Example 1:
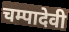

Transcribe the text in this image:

चम्पादेवी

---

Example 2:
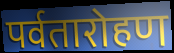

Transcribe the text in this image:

पर्वतारोहण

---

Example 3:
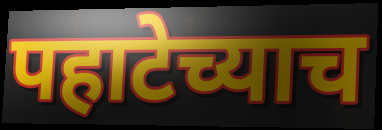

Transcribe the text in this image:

पहाटेच्याच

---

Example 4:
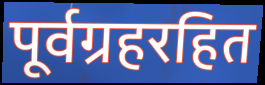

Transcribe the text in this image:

पूर्वग्रहरहित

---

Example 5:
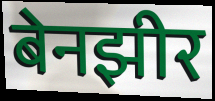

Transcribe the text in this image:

बेनझीर